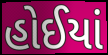
હોઈયાં